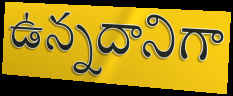
ఉన్నదానిగా